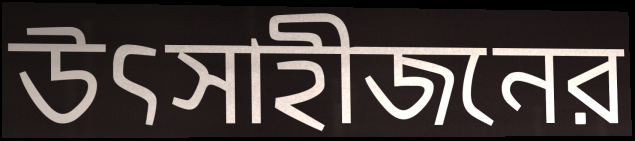
উৎসাহীজনের